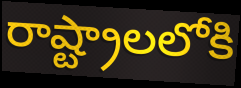
రాష్ట్రాలలోకి